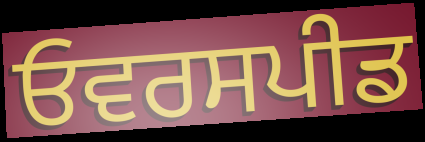
ਓਵਰਸਪੀਡ